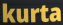
kurta